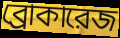
ব্রোকারেজ